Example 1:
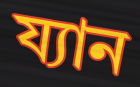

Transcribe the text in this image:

য্যান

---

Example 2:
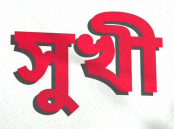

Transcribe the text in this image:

সুখী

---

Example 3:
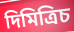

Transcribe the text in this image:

দিমিত্রিচ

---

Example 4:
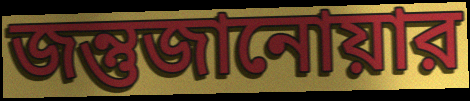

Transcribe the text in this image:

জন্তুজানোয়ার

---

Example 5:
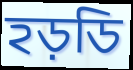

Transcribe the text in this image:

হড়ডি